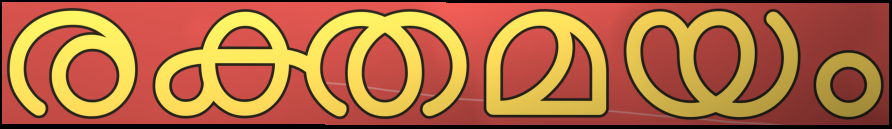
രക്തമയം